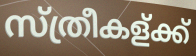
സ്ത്രീകള്ക്ക്